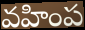
వహింప